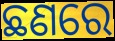
ଛଣରେ